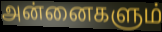
அன்னைகளும்